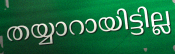
തയ്യാറായിട്ടില്ല